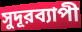
সুদূরব্যাপী